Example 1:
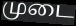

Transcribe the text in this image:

முடை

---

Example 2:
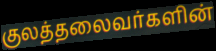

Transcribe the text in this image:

குலத்தலைவர்களின்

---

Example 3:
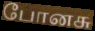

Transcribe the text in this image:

போனசு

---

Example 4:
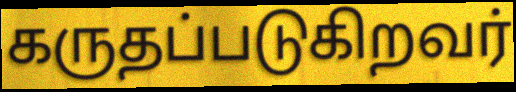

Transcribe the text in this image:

கருதப்படுகிறவர்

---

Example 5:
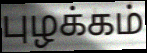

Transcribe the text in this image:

புழக்கம்